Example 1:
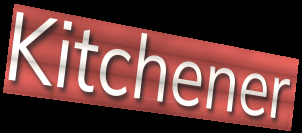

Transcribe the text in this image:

Kitchener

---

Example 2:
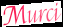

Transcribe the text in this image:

Murci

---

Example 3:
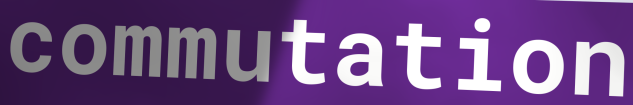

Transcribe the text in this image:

commutation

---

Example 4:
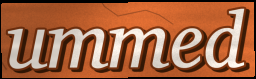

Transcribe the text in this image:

ummed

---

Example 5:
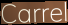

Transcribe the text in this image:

Carrel